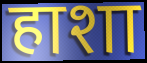
हाशा